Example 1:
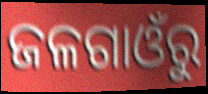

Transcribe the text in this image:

ଜଳଗାଓଁରୁ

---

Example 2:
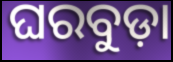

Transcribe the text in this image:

ଘରବୁଡ଼ା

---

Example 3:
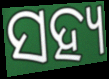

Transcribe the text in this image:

ସହ୍ଯ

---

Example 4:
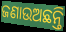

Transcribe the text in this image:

ଜଣାଉଅଛନ୍ତି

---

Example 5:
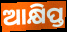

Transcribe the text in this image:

ଆକ୍ଷିପ୍ତ